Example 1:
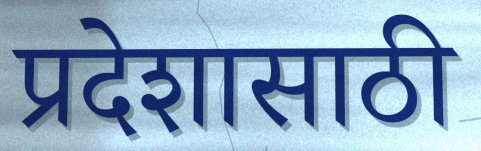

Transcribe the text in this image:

प्रदेशासाठी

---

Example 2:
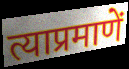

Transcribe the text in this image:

त्याप्रमाणें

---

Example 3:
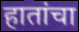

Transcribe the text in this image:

हातांचा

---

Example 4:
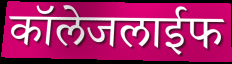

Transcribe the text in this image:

कॉलेजलाईफ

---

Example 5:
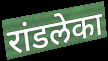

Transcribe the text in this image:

रांडलेका